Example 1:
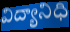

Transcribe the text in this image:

విద్యానిధి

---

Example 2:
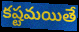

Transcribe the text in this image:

కష్టమయితే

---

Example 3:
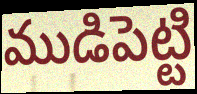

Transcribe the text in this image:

ముడిపెట్టి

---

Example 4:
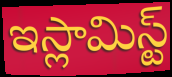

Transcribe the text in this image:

ఇస్లామిస్ట్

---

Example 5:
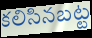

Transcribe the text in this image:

కలిసినబట్ట